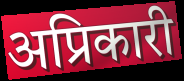
अप्रिकारी